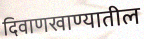
दिवाणखाण्यातील